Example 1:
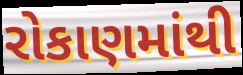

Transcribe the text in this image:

રોકાણમાંથી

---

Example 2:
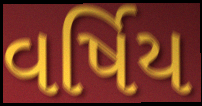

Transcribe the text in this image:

વર્ષિય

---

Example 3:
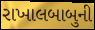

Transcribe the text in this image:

રાખાલબાબુની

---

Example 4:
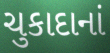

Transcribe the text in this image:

ચુકાદાનાં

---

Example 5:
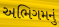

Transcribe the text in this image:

અભિગમનું